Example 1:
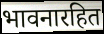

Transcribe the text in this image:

भावनारहित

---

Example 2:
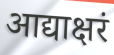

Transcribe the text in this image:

आद्याक्षरं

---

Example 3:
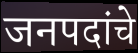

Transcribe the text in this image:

जनपदांचे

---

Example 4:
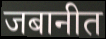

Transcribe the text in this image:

जबानीत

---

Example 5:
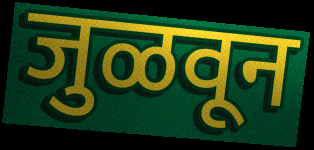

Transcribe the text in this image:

जुळवून